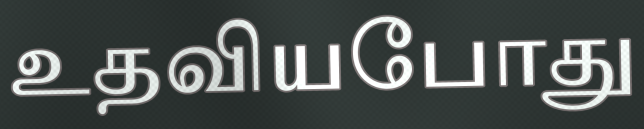
உதவியபோது